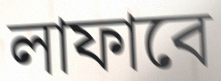
লাফাবে